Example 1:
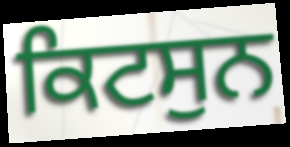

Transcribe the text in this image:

ਕਿਟਸੁਨ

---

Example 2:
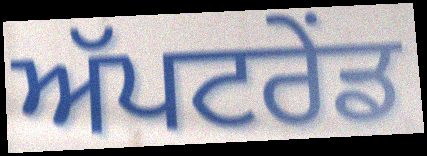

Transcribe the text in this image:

ਅੱਪਟਰੇਂਡ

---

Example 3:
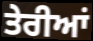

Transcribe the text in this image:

ਤੇਰੀਆਂ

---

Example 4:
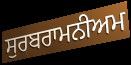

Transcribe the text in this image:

ਸੁਰਬਰਾਮਨੀਅਮ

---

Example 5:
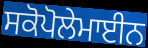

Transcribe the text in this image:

ਸਕੋਪੋਲੇਮਾਈਨ